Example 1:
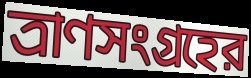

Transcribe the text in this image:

ত্রাণসংগ্রহের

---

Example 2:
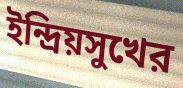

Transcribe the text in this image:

ইন্দ্রিয়সুখের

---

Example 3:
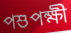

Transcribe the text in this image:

পশুপক্ষী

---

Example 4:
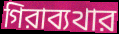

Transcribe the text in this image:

গিরাব্যথার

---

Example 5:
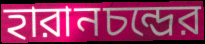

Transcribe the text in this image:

হারানচন্দ্রের